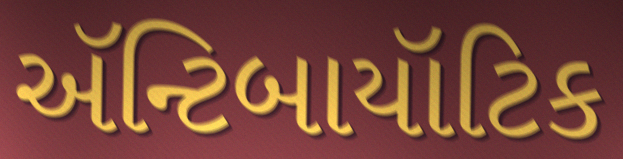
ઍન્ટિબાયૉટિક